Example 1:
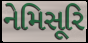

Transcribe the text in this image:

નેમિસૂરિ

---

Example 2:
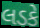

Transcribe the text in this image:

લડકે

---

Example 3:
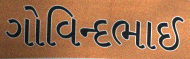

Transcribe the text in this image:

ગોવિન્દભાઈ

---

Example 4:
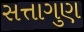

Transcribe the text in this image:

સત્તાગુણ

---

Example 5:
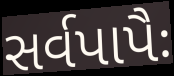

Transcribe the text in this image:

સર્વપાપૈઃ